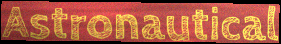
Astronautical